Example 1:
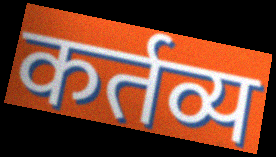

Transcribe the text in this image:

कर्तव्य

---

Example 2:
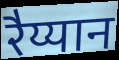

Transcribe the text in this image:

रैय्यान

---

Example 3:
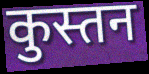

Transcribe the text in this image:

कुस्तन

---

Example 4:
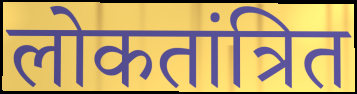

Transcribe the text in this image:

लोकतांत्रित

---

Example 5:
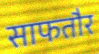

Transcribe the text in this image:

साफतौर